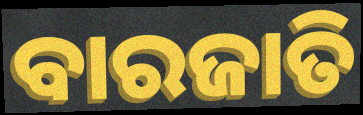
ବାରଜାତି